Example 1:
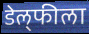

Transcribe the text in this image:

डेल्फीला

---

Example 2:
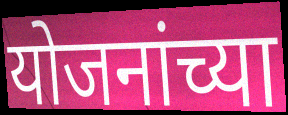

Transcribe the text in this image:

योजनांच्या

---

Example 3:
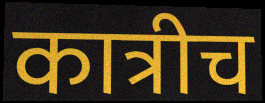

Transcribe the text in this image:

कात्रीच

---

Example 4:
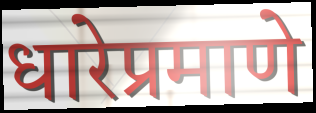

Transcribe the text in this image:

धारेप्रमाणे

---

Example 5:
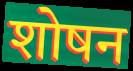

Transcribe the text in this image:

शोषन